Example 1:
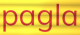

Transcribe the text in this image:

pagla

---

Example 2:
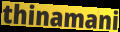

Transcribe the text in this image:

thinamani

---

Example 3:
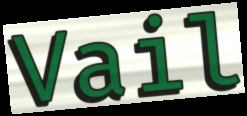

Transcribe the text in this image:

Vail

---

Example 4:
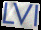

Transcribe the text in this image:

LVI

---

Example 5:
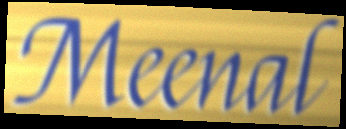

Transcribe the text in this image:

Meenal